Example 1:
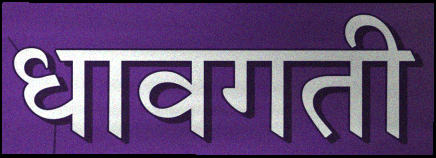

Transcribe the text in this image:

धावगती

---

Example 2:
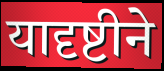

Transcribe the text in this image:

यादृष्टीने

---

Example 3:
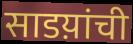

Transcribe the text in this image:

साडय़ांची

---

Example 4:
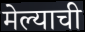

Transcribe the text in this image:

मेल्याची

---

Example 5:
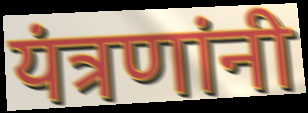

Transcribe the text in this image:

यंत्रणांनी